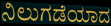
ನಿಲುಗಡೆಯಾದ